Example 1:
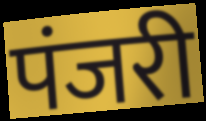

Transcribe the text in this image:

पंजरी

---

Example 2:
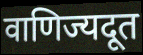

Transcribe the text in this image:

वाणिज्यदूत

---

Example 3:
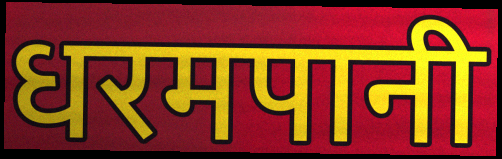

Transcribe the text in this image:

धरमपानी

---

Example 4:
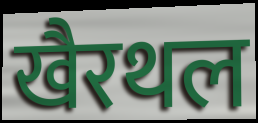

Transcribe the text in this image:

खैरथल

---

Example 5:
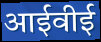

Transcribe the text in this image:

आईवीई